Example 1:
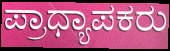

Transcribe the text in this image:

ಪ್ರಾಧ್ಯಾಪಕರು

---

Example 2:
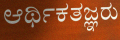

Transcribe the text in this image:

ಆರ್ಥಿಕತಜ್ಞರು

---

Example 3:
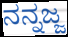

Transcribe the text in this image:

ನನ್ನಜ್ಜ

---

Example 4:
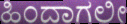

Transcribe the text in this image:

ಹಿಂದಾಗಲೀ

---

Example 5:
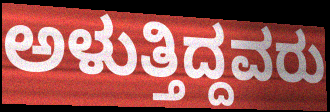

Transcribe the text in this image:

ಅಳುತ್ತಿದ್ದವರು